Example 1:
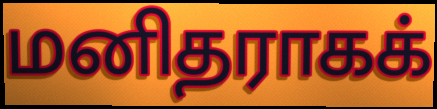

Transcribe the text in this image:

மனிதராகக்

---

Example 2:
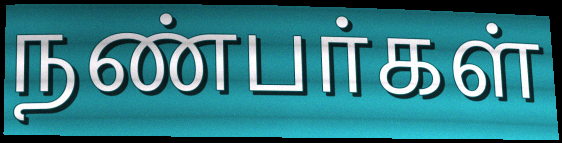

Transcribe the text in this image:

நண்பர்கள்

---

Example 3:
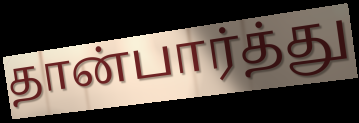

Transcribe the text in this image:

தான்பார்த்து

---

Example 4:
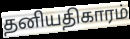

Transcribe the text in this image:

தனியதிகாரம்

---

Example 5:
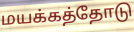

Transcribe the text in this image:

மயக்கத்தோடு